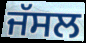
ਜੱਸਲ